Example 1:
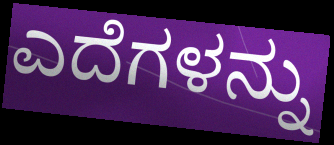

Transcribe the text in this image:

ಎದೆಗಳನ್ನು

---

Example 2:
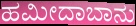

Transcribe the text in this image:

ಹಮೀದಾಬಾನು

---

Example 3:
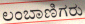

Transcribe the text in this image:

ಲಂಬಾಣಿಗರು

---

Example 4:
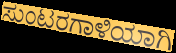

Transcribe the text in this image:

ಸುಂಟರಗಾಳಿಯಾಗಿ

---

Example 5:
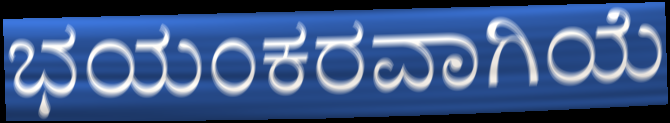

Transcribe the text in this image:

ಭಯಂಕರವಾಗಿಯೆ